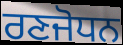
ਰਣਜੋਧਨ